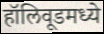
हॉलिवूडमध्ये